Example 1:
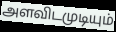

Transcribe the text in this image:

அளவிடமுடியும்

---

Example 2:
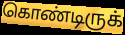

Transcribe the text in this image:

கொண்டிருக்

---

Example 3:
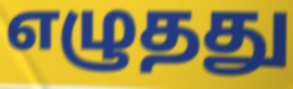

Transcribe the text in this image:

எழுதது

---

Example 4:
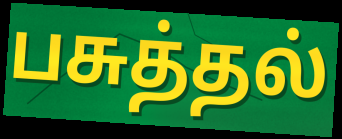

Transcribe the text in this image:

பசுத்தல்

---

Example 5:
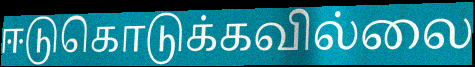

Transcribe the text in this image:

ஈடுகொடுக்கவில்லை